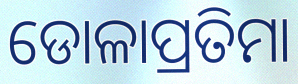
ଡୋଳାପ୍ରତିମା